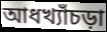
আধখ্যাঁচড়া